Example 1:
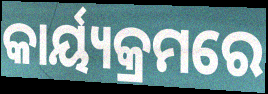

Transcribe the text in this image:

କାର୍ୟ୍ୟକ୍ରମରେ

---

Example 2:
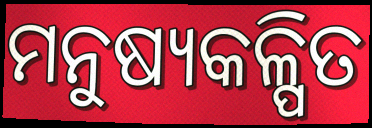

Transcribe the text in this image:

ମନୁଷ୍ୟକଳ୍ପିତ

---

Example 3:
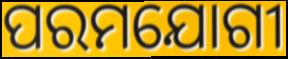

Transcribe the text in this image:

ପରମଯୋଗୀ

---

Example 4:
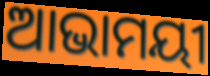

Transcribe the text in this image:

ଆଭାମୟୀ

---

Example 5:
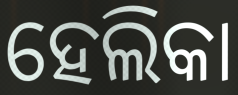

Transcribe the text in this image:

ହେଲିକା